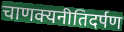
चाणक्यनीतिदर्पण